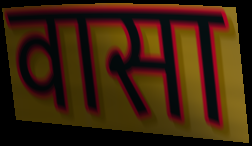
वासा